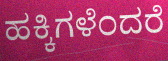
ಹಕ್ಕಿಗಳೆಂದರೆ